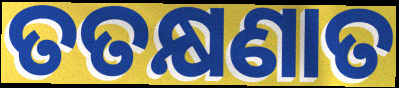
ତତକ୍ଷଣାତ